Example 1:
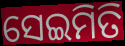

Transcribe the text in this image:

ସେଇମିତି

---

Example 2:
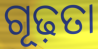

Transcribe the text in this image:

ଗୂଢ଼ତା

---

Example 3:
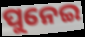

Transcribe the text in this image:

ପୁନେଇ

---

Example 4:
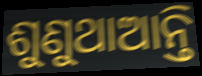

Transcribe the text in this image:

ଶୁଣୁଥାଆନ୍ତି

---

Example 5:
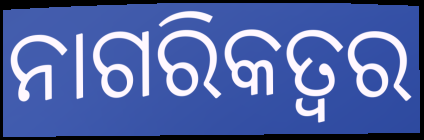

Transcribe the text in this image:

ନାଗରିକତ୍ୱର